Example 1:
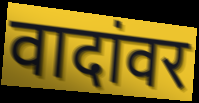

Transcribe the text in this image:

वादांवर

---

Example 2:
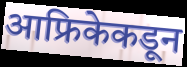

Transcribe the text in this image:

आफ्रिकेकडून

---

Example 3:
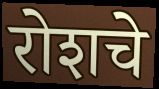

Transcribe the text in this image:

रोशचे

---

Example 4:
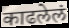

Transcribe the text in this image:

काढलेलं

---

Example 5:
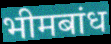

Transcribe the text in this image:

भीमबांध